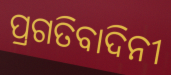
ପ୍ରଗତିବାଦିନୀ